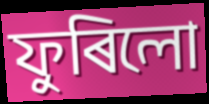
ফুৰিলো